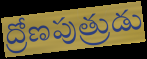
ద్రోణపుత్రుడు